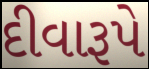
દીવારૂપે